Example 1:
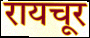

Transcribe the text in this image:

रायचूर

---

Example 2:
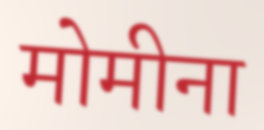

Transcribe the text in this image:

मोमीना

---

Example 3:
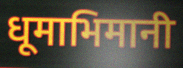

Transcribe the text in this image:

धूमाभिमानी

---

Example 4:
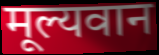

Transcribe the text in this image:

मूल्यवान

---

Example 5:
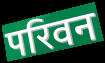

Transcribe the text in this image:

परिवन